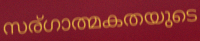
സര്ഗാത്മകതയുടെ